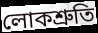
লোকশ্ৰুতি